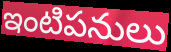
ఇంటిపనులు